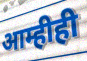
आम्हीही